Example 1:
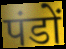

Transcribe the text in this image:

पंडों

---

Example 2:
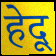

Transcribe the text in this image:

हेदू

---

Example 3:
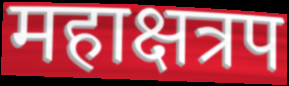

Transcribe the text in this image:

महाक्षत्रप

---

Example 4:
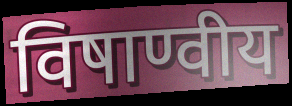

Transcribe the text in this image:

विषाण्वीय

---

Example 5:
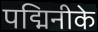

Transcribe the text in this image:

पद्मिनीके